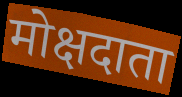
मोक्षदाता